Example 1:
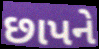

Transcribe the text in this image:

છાપને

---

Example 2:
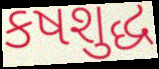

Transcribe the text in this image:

કષશુદ્ધ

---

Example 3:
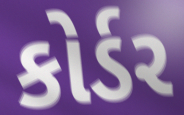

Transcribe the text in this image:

કોર્ડર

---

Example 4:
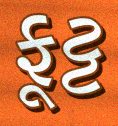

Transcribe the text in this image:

ફૂટ્ટ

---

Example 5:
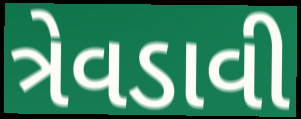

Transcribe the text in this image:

ત્રેવડાવી